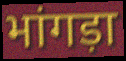
भांगड़ा